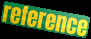
reference